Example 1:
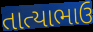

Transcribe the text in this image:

તાત્યાભાઉ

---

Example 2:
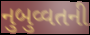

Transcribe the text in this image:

નુબુવ્વતની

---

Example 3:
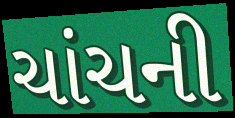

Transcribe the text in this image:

ચાંચની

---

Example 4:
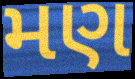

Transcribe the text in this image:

મણ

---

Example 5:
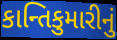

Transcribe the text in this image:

કાન્તિકુમારીનું